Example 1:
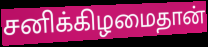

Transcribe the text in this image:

சனிக்கிழமைதான்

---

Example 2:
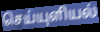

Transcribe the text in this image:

செய்யுளியல்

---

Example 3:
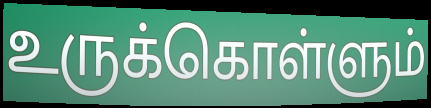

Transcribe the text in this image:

உருக்கொள்ளும்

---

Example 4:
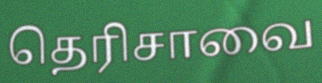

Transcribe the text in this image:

தெரிசாவை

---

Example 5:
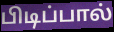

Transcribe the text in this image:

பிடிப்பால்